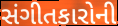
સંગીતકારોની